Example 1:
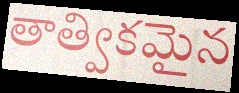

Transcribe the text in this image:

తాత్వికమైన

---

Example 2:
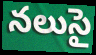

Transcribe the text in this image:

నలుసై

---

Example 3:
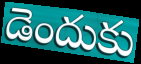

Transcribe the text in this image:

డెందుకు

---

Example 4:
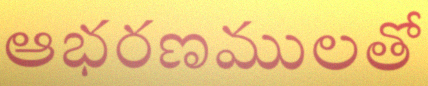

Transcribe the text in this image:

ఆభరణములతో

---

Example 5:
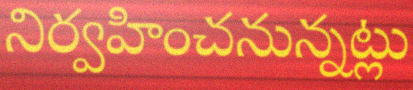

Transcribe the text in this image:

నిర్వహించనున్నట్లు